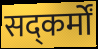
सद्कर्मों